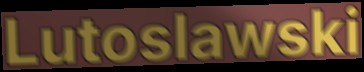
Lutoslawski